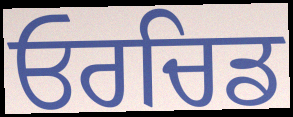
ਓਰਚਿਡ